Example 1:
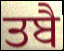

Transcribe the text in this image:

ਤਬੈ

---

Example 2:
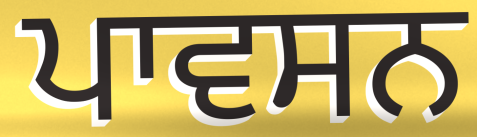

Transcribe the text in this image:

ਪਾਵਸਨ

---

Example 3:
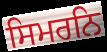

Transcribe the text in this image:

ਸਿਮਰਨਿ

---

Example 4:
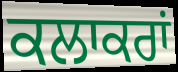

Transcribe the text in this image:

ਕਲਾਕਰਾਂ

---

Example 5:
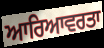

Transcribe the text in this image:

ਆਰਿਆਵਰਤਾ